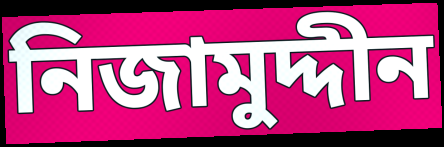
নিজামুদ্দীন